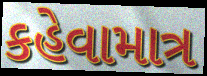
કહેવામાત્ર